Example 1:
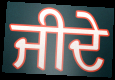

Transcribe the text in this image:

ਜੀਦੇ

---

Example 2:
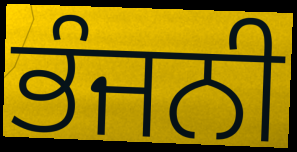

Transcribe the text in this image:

ਭੰਜਨੀ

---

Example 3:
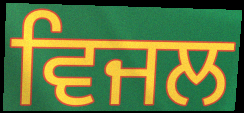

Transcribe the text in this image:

ਵਿਜਲ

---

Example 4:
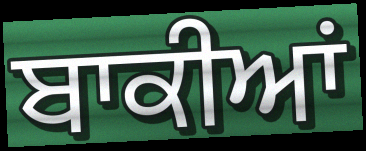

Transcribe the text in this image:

ਬਾਕੀਆਂ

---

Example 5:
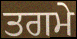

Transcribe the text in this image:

ਤਗਮੇ